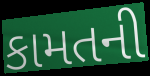
કામતની